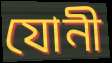
যোনী